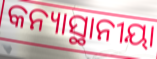
କନ୍ୟାସ୍ଥାନୀୟା